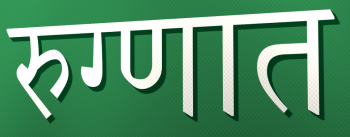
रुग्णात